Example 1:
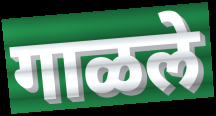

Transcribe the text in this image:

गाळले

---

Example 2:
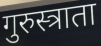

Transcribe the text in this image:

गुरुस्त्राता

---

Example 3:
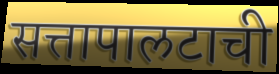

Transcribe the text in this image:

सत्तापालटाची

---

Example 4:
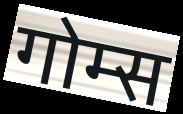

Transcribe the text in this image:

गोम्स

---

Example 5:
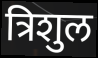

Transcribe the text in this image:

त्रिशुल